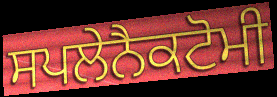
ਸਪਲੇਨੈਕਟੋਮੀ